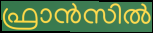
ഫ്രാൻസിൽ